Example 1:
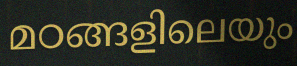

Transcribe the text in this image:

മഠങ്ങളിലെയും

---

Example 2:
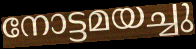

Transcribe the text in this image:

നോട്ടമയച്ചു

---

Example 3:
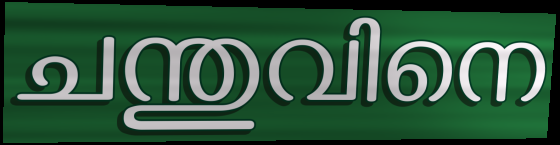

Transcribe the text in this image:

ചന്തുവിനെ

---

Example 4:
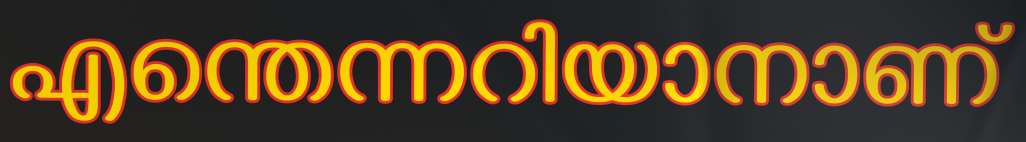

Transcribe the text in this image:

എന്തെന്നറിയാനാണ്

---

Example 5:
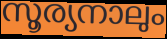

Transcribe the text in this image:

സൂര്യനാലും